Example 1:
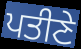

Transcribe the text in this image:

ਪਤੀਣੇ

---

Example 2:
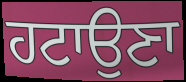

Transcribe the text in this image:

ਹਟਾਉਣਾ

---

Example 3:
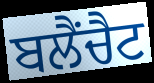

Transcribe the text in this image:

ਬਲੈਂਚੈਟ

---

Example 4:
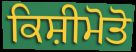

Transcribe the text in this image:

ਕਿਸ਼ੀਮੋਤੋ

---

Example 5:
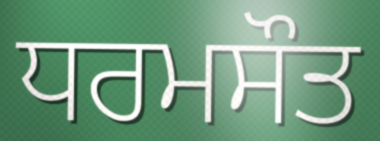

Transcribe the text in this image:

ਧਰਮਸੌਤ